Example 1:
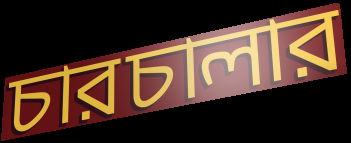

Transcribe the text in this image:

চারচালার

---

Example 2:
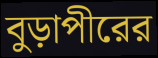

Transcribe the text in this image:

বুড়াপীরের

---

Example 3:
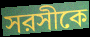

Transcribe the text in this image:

সরসীকে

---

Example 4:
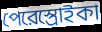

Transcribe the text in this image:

পেরেস্ত্রোইকা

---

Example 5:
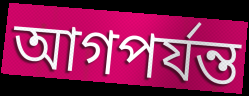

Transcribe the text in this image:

আগপর্যন্ত